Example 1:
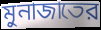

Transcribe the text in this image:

মুনাজাতের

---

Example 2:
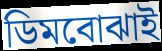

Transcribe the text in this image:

ডিমবোঝাই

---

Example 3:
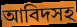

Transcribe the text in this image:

আবিদসহ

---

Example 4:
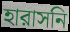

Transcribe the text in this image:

হারাসনি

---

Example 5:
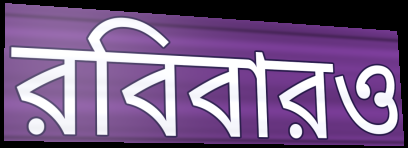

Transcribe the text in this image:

রবিবারও